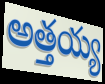
అత్తయ్య